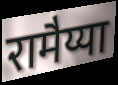
रामैय्या